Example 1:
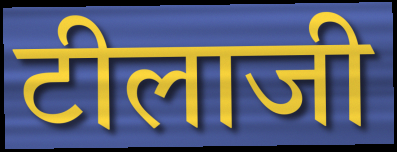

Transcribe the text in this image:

टीलाजी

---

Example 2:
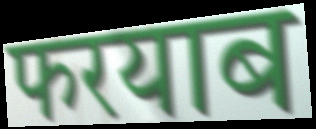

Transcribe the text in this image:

फरयाब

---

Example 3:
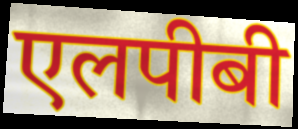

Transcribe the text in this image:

एलपीबी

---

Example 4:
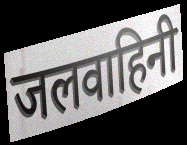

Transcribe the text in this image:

जलवाहिनी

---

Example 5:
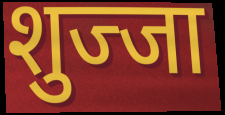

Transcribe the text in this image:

शुज्जा